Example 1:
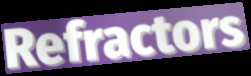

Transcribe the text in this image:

Refractors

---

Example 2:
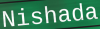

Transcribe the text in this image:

Nishada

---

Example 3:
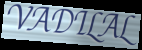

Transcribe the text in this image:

VADILAL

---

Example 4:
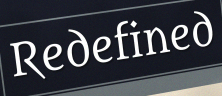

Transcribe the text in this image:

Redefined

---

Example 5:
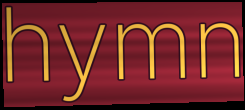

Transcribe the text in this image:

hymn